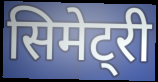
सिमेट्री